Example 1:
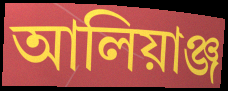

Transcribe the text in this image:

আলিয়াঞ্জ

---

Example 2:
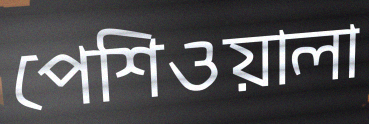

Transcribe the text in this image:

পেশিওয়ালা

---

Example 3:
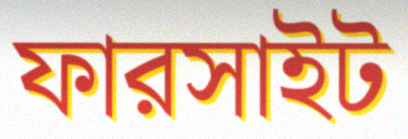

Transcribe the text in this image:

ফারসাইট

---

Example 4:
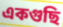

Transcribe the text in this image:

একগুছি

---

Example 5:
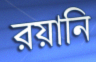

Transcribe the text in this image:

রয়ানি